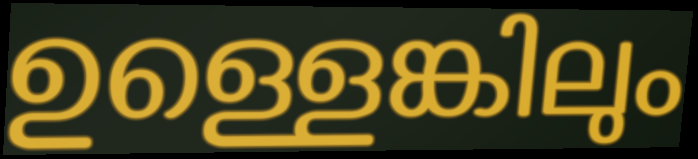
ഉള്ളെങ്കിലും